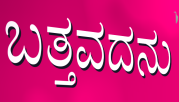
ಬತ್ತವದನು